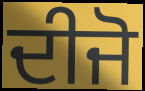
ਦੀਜੋ